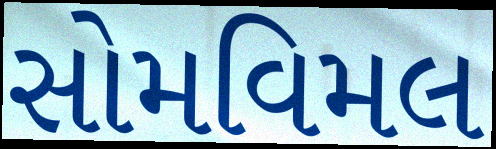
સોમવિમલ